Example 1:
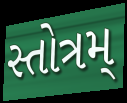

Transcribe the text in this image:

સ્તોત્રમ્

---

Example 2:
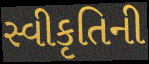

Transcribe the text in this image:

સ્વીકૃતિની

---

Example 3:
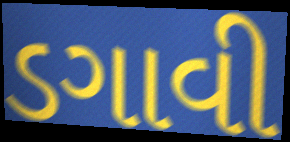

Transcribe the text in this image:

ડગાવી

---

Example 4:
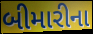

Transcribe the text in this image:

બીમારીના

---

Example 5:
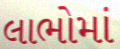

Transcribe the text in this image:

લાભોમાં